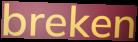
breken